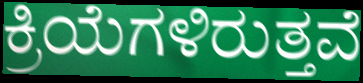
ಕ್ರಿಯೆಗಳಿರುತ್ತವೆ